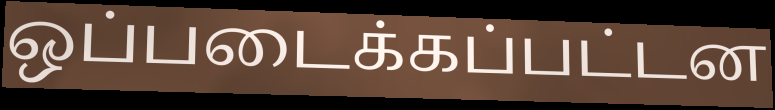
ஒப்படைக்கப்பட்டன